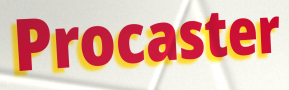
Procaster